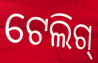
ଟେଲିଗ୍